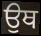
ਉਥ